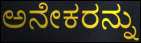
ಅನೇಕರನ್ನು